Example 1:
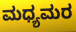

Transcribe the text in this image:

ಮಧ್ಯಮರ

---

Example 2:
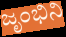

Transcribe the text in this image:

ಜೃಂಭಿನಿ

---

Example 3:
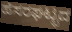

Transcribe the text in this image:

ಹೆಸರಘಟ್ಟದ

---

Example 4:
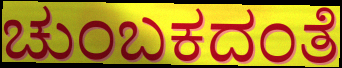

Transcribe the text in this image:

ಚುಂಬಕದಂತೆ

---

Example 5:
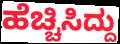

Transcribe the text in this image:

ಹೆಚ್ಚಿಸಿದ್ದು